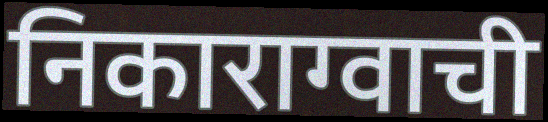
निकाराग्वाची